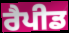
ਰੈਪੀਡ